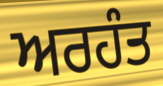
ਅਰਹੰਤ